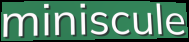
miniscule